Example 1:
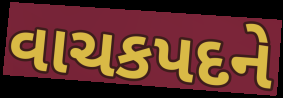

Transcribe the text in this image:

વાચકપદને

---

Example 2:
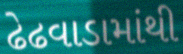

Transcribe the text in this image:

ઢેઢવાડામાંથી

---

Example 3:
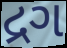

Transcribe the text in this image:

દ્રગ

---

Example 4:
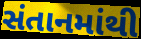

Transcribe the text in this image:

સંતાનમાંથી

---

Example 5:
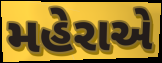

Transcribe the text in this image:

મહેરાએ